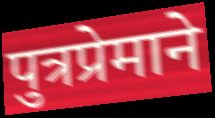
पुत्रप्रेमाने